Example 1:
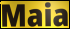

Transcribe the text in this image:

Maia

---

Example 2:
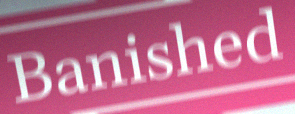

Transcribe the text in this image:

Banished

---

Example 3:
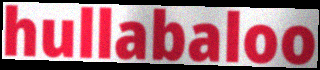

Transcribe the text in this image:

hullabaloo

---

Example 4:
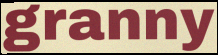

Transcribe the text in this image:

granny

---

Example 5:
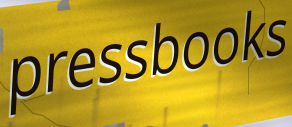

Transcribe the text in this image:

pressbooks